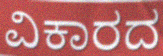
ವಿಕಾರದ